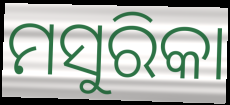
ମସୁରିକା